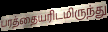
பரத்தையரிடமிருந்து